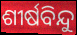
ଶୀର୍ଷବିନ୍ଦୁ